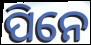
ପିନେ